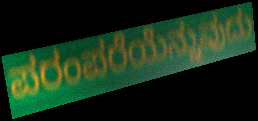
ಪರಂಪರೆಯೆನ್ನುವುದು